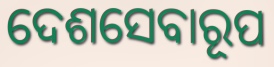
ଦେଶସେବାରୂପ